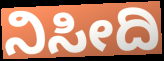
ನಿಸೀದಿ